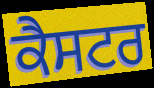
ਕੈਸਟਰ